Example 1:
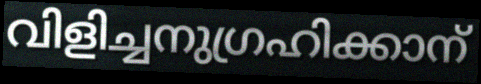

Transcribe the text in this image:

വിളിച്ചനുഗ്രഹിക്കാന്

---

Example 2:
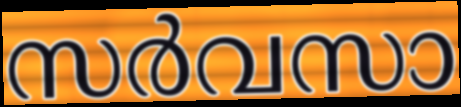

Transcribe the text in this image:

സർവസാ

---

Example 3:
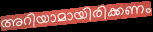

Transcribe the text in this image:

അറിയാമായിരിക്കണം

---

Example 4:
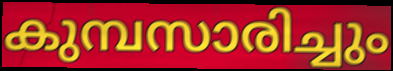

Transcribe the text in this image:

കുമ്പസാരിച്ചും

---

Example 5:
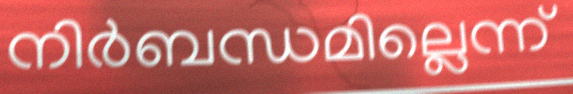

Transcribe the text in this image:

നിർബന്ധമില്ലെന്ന്